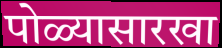
पोळ्यासारखा